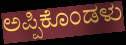
ಅಪ್ಪಿಕೊಂಡಳು